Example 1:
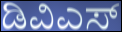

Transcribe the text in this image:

ಡಿವಿಎಸ್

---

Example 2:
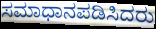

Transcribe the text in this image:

ಸಮಾಧಾನಪಡಿಸಿದರು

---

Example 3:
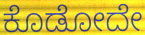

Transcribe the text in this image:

ಕೊಡೋದೇ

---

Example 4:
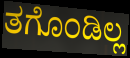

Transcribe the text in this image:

ತಗೊಂಡಿಲ್ಲ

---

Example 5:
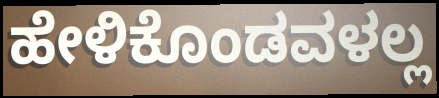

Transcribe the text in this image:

ಹೇಳಿಕೊಂಡವಳಲ್ಲ